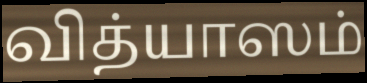
வித்யாஸம்